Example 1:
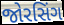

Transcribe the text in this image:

જોરસિંગ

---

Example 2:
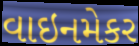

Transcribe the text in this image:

વાઇનમેકર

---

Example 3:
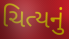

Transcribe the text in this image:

ચિત્યનું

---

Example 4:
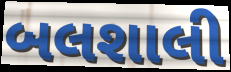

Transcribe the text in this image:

બલશાલી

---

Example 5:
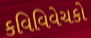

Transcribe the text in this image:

કવિવિવેચકો